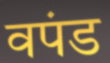
वपंड